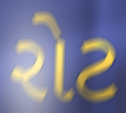
રોટ